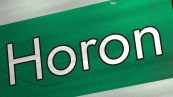
Horon